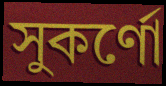
সুকর্ণো